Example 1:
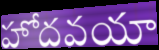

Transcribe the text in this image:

హోదవయా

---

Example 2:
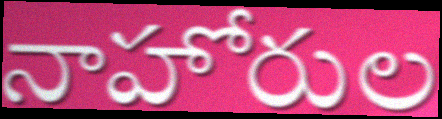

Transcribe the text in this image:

నాహోరుల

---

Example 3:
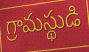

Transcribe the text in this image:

గ్రామస్థుడి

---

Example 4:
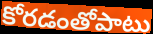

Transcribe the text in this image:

కోరడంతోపాటు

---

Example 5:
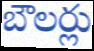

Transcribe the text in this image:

బౌలర్లు